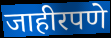
जाहीरपणे